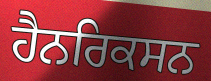
ਹੈਨਰਿਕਸਨ